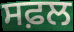
ਸਫ਼ਲ